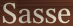
Sasse